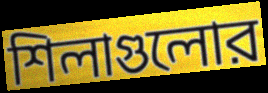
শিলাগুলোর